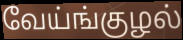
வேய்ங்குழல்